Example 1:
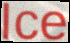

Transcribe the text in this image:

Ice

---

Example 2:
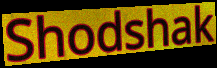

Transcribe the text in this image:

Shodshak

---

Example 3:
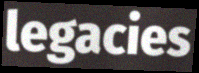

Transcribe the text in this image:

legacies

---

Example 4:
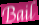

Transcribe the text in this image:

Bail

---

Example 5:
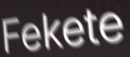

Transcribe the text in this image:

Fekete